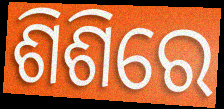
ଶିଶିରେ